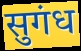
सुगंध